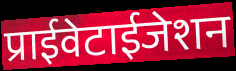
प्राईवेटाईजेशन